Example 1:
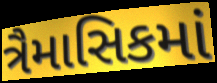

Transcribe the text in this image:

ત્રૈમાસિકમાં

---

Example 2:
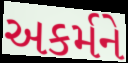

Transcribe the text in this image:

અકર્મને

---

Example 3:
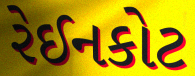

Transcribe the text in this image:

રેઈનકોટ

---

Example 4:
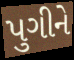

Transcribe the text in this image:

પુગીને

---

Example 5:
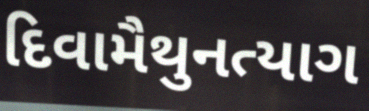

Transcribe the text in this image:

દિવામૈથુનત્યાગ